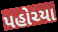
પહોચ્યા